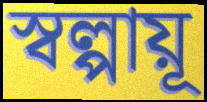
স্বল্পায়ূ